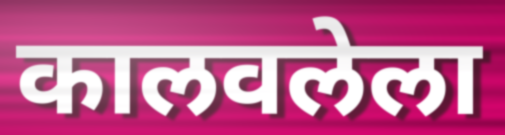
कालवलेला